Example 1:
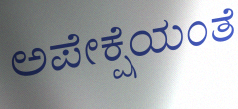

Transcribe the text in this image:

ಅಪೇಕ್ಷೆಯಂತೆ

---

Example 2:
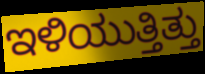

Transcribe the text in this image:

ಇಳಿಯುತ್ತಿತ್ತು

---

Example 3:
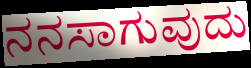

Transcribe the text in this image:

ನನಸಾಗುವುದು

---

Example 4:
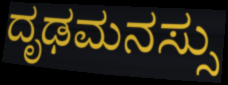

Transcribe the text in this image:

ದೃಢಮನಸ್ಸು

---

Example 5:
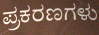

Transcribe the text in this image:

ಪ್ರಕರಣಗಳು